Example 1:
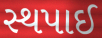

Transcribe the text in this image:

સ્થપાઈ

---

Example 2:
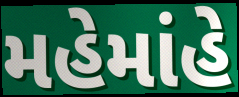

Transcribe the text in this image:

મહેમાંહે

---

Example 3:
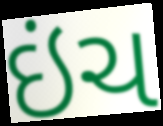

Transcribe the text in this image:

ઇંચ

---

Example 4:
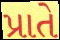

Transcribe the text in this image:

પ્રાતે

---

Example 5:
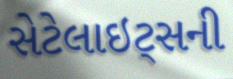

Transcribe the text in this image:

સેટેલાઇટ્સની